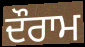
ਦੌਰਾਮ